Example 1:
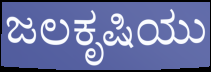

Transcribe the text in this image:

ಜಲಕೃಷಿಯು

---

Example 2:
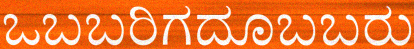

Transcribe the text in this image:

ಒಬಬರಿಗದೂಬಬರು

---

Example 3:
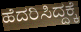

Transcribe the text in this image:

ಹೆದರಿಸಿದ್ದಕ್ಕೆ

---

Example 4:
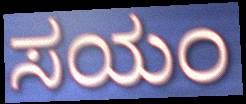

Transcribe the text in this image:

ಸಯಂ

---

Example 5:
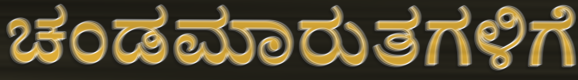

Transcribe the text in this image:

ಚಂಡಮಾರುತಗಳಿಗೆ